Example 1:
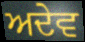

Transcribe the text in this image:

ਅਦੇਵ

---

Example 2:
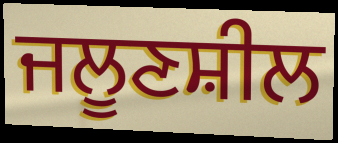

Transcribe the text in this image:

ਜਲੂਣਸ਼ੀਲ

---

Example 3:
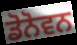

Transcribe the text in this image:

ਡੋਨੋਵਨ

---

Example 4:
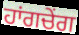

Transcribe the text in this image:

ਹਾਂਗਚੇਂਗ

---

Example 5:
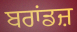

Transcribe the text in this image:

ਬਰਾਂਡਜ਼